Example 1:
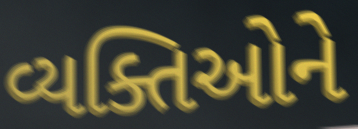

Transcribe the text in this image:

વ્યક્તિઓને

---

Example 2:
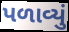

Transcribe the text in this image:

પળાવ્યું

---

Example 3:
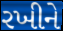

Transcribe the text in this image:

રખીને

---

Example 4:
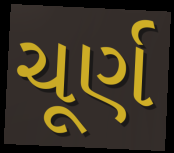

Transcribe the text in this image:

ચૂર્ણ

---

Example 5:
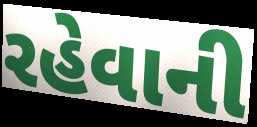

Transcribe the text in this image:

રહેવાની